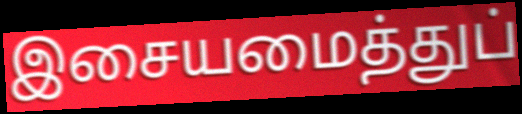
இசையமைத்துப்